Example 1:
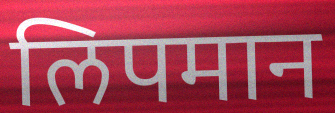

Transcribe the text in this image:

लिपमान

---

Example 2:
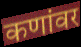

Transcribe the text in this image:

कणांवर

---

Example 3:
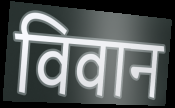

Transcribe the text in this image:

विवान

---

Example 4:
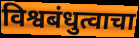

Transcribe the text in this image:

विश्वबंधुत्वाचा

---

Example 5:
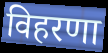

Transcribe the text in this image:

विहरणा